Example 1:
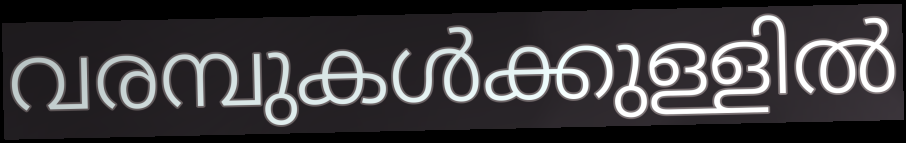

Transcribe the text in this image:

വരമ്പുകൾക്കുള്ളിൽ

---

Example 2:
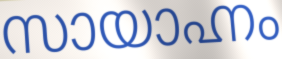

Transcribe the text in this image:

സായാഹ്നം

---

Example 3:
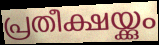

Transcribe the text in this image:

പ്രതീക്ഷയ്ക്കും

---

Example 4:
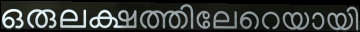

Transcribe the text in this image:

ഒരുലക്ഷത്തിലേറെയായി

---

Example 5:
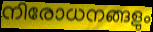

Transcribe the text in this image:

നിരോധനങ്ങളും